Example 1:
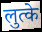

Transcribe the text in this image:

लुत्के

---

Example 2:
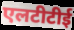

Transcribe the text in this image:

एलटीटीई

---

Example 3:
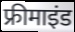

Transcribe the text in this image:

फ्रीमाइंड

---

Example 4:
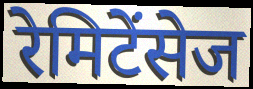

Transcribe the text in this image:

रेमिटेंसेज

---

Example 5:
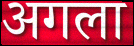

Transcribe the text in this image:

अगला